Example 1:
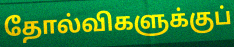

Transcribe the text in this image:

தோல்விகளுக்குப்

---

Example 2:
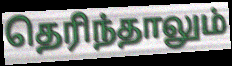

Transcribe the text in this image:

தெரிந்தாலும்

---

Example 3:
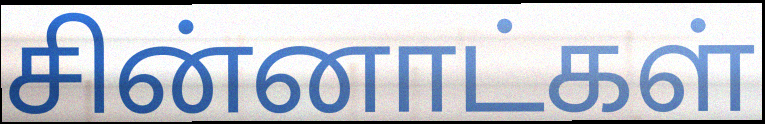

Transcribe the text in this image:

சின்னாட்கள்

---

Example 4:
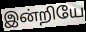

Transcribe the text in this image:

இன்றியே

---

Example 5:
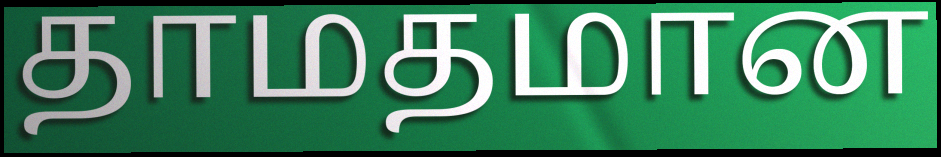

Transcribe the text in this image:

தாமதமான